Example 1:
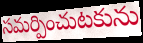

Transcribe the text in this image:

సమర్పించుటకును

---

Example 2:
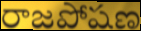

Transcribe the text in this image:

రాజపోషణ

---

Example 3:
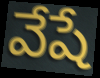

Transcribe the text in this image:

వేషే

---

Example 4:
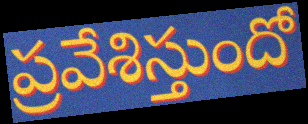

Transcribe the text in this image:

ప్రవేశిస్తుందో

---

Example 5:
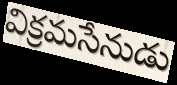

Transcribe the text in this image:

విక్రమసేనుడు